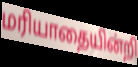
மரியாதையின்றி